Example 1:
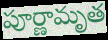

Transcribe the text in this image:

పూర్ణామృత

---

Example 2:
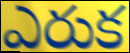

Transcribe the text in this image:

ఎరుక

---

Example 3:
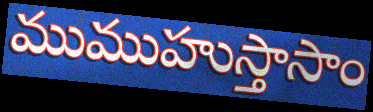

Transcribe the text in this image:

ముముహుస్తాసాం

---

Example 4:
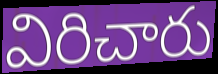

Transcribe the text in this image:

విరిచారు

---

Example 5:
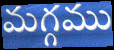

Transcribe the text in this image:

మగ్గము